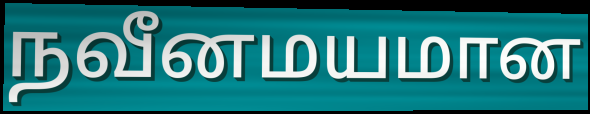
நவீனமயமான